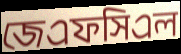
জেএফসিএল